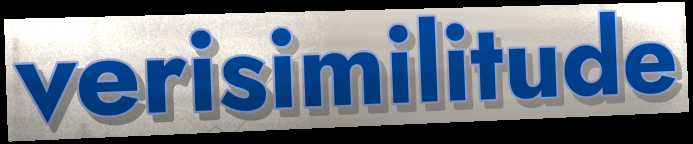
verisimilitude